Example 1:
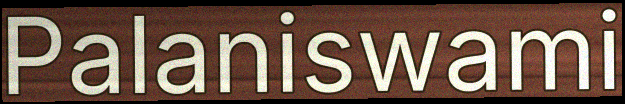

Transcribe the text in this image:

Palaniswami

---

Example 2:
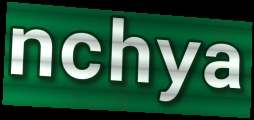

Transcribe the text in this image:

nchya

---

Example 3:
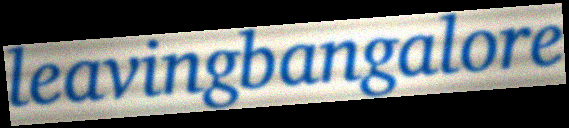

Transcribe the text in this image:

leavingbangalore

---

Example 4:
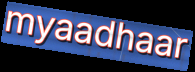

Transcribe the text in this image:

myaadhaar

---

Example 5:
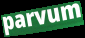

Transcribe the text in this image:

parvum